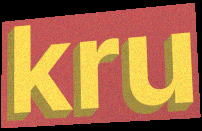
kru